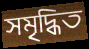
সমৃদ্ধিত